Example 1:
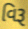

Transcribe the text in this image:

વિરૂ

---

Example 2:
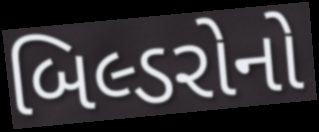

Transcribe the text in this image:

બિલ્ડરોનો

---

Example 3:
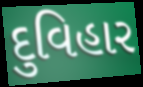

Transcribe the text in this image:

દુવિહાર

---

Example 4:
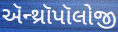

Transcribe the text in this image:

ઍન્થ્રૉપૉલોજી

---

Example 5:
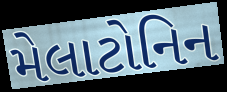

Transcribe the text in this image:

મેલાટોનિન